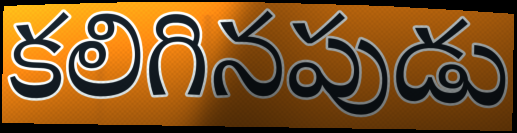
కలిగినపుడు